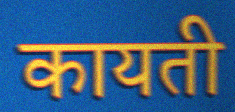
कायती